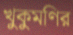
খুকুমণির